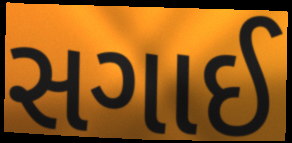
સગાઈ